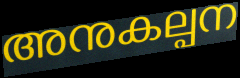
അനുകല്പന